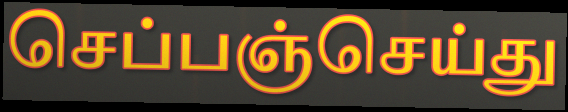
செப்பஞ்செய்து